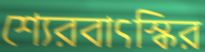
শ্যেরবাৎস্কির